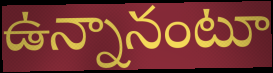
ఉన్నానంటూ